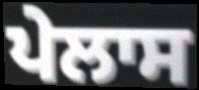
ਪੇਲਾਸ